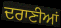
ਦਰਾਣੀਆਂ